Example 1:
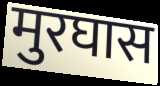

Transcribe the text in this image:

मुरघास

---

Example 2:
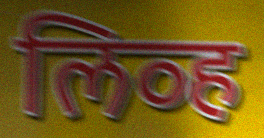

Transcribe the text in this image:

लिव्ह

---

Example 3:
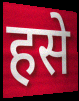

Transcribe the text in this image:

हसे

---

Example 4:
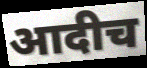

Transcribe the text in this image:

आदीच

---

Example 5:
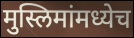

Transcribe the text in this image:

मुस्लिमांमध्येच